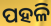
ପହଳି